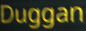
Duggan